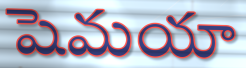
షెమయా